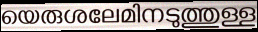
യെരുശലേമിനടുത്തുള്ള